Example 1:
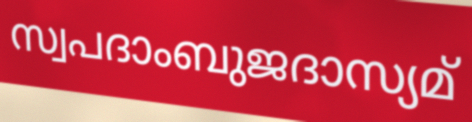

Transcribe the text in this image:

സ്വപദാംബുജദാസ്യമ്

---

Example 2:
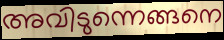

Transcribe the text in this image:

അവിടുന്നെങ്ങനെ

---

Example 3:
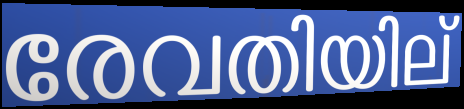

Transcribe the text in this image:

രേവതിയില്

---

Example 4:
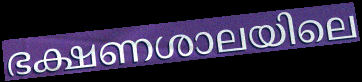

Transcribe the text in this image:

ഭക്ഷണശാലയിലെ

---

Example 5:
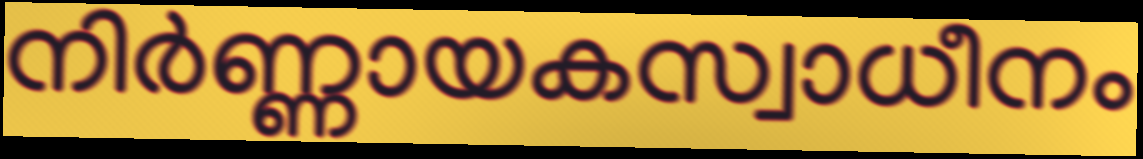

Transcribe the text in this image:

നിർണ്ണായകസ്വാധീനം